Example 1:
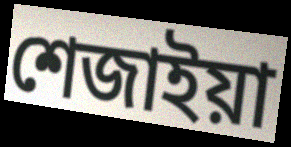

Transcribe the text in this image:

শেজাইয়া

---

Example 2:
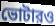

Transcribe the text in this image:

ভোটারও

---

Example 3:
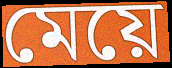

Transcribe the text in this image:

মেয়ে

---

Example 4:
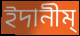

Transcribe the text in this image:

ইদানীম্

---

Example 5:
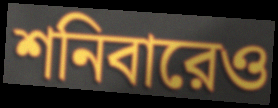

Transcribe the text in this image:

শনিবারেও